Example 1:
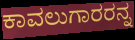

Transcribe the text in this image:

ಕಾವಲುಗಾರರನ್ನ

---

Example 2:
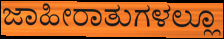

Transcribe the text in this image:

ಜಾಹೀರಾತುಗಳಲ್ಲೂ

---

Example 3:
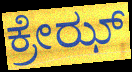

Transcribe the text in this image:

ಕ್ರೇಝ್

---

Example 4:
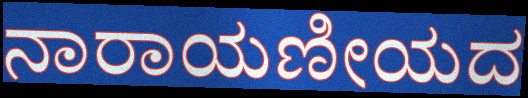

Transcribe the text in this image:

ನಾರಾಯಣೀಯದ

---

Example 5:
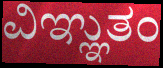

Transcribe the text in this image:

ವಿಞ್ಞುತಂ